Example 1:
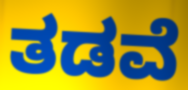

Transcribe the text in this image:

ತಡವೆ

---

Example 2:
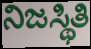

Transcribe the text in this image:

ನಿಜಸ್ಥಿತಿ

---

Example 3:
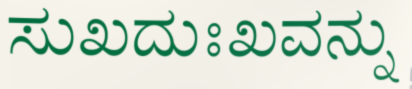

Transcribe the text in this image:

ಸುಖದುಃಖವನ್ನು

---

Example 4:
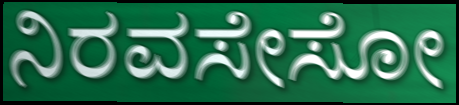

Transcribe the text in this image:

ನಿರವಸೇಸೋ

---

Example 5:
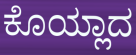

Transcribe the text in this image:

ಕೊಯ್ಲಾದ